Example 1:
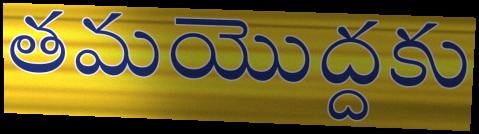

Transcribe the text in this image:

తమయొద్దకు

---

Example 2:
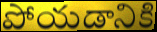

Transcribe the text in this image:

పోయడానికి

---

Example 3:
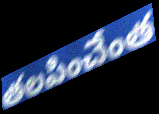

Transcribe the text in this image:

తలపించేంత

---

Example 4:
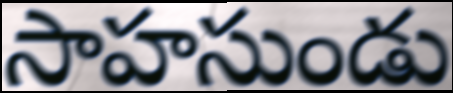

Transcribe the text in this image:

సాహసుండు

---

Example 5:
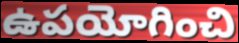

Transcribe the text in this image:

ఉపయోగించి